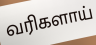
வரிகளாய்